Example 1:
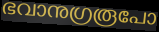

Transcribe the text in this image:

ഭവാനുഗ്രരൂപോ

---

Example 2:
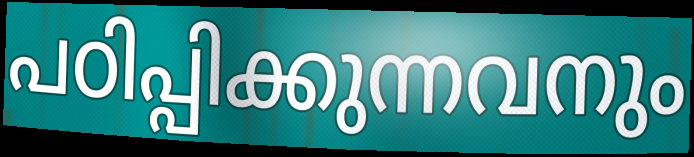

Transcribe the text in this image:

പഠിപ്പിക്കുന്നവനും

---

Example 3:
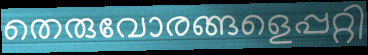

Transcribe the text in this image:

തെരുവോരങ്ങളെപ്പറ്റി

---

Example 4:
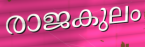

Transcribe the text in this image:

രാജകുലം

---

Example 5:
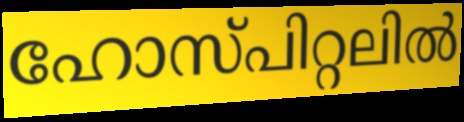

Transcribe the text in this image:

ഹോസ്പിറ്റലിൽ